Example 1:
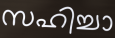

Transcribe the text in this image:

സഹിച്ചാ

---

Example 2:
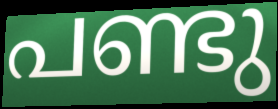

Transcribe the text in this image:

പണ്ടു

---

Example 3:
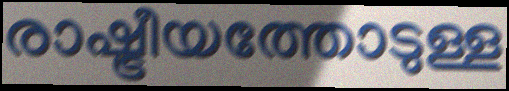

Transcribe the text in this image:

രാഷ്ട്രീയത്തോടുള്ള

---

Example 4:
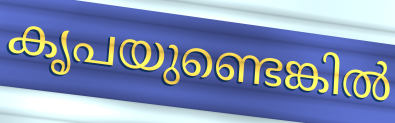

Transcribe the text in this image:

കൃപയുണ്ടെങ്കിൽ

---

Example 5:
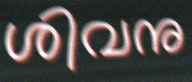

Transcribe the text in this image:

ശിവനു